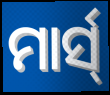
ମାର୍ସ୍